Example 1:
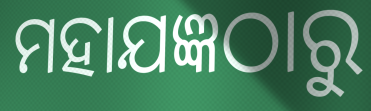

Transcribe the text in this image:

ମହାଯଜ୍ଞଠାରୁ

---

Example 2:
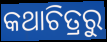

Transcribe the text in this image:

କଥାଚିତ୍ରରୁ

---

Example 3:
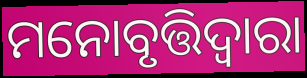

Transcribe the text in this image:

ମନୋବୃତ୍ତିଦ୍ଵାରା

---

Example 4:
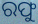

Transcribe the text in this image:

ରଫୁ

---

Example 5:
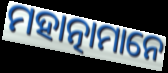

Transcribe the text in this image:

ମହାତ୍ନାମାନେ